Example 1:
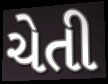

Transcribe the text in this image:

ચેતી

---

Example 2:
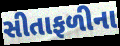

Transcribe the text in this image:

સીતાફળીના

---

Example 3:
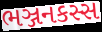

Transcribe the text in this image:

ભઞ્જનકસ્સ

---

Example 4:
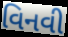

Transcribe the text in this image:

વિનવી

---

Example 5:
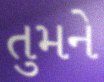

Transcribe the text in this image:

તુમને